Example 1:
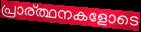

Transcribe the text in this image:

പ്രാര്ത്ഥനകളോടെ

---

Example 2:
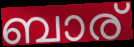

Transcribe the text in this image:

ബാര്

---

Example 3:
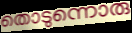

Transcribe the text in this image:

തൊടുന്നൊരു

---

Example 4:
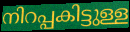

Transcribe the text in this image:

നിറപ്പകിട്ടുള്ള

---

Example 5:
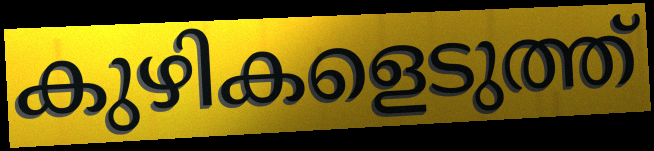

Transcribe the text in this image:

കുഴികളെടുത്ത്